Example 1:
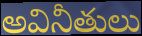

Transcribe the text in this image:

అవినీతులు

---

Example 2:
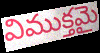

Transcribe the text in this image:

విముక్తమై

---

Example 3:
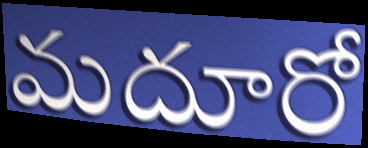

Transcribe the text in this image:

మదూరో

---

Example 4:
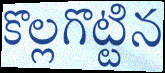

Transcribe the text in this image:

కొల్లగొట్టిన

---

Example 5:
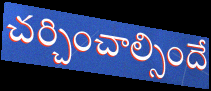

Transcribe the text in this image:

చర్చించాల్సిందే